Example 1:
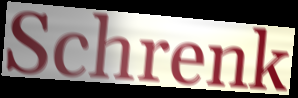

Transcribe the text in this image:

Schrenk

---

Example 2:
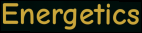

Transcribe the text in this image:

Energetics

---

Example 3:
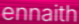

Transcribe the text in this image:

ennaith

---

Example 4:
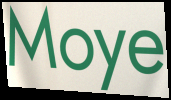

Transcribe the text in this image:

Moye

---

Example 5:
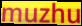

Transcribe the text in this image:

muzhu